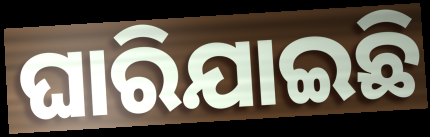
ଘାରିଯାଇଛି